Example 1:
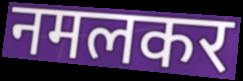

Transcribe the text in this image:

नमलकर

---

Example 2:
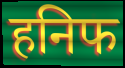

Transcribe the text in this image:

हनिफ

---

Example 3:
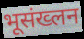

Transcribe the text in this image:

भूसंख्लन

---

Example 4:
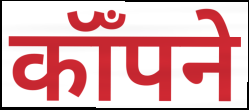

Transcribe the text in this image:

कॉँपने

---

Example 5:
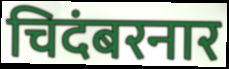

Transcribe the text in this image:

चिदंबरनार